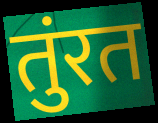
तुंरत